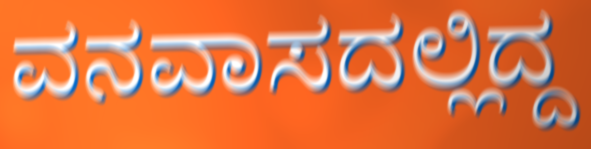
ವನವಾಸದಲ್ಲಿದ್ದ